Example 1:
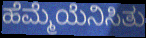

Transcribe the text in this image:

ಹೆಮ್ಮೆಯೆನಿಸಿತು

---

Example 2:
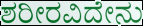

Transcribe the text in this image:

ಶರೀರವಿದೇನು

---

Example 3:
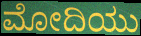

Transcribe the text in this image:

ಮೋದಿಯು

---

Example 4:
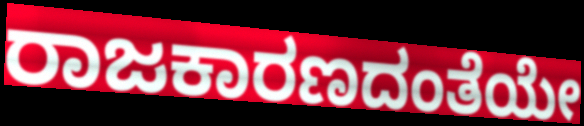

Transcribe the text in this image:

ರಾಜಕಾರಣದಂತೆಯೇ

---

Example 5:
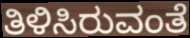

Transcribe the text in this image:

ತಿಳಿಸಿರುವಂತೆ